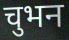
चुभन